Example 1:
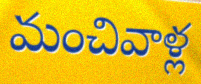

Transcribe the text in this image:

మంచివాళ్ల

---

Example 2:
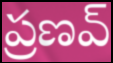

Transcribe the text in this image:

ప్రణవ్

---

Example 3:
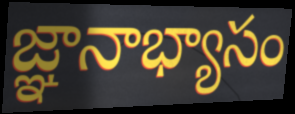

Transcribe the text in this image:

జ్ఞానాభ్యాసం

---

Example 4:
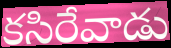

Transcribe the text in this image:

కసిరేవాడు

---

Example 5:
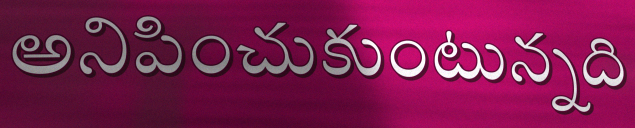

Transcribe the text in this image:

అనిపించుకుంటున్నది